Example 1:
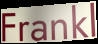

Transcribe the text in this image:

Frankl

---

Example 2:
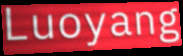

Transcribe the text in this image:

Luoyang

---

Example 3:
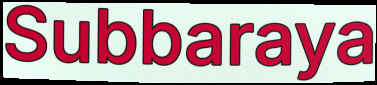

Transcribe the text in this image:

Subbaraya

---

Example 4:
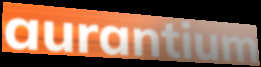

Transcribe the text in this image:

aurantium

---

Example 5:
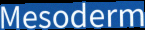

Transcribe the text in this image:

Mesoderm